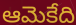
ఆమెకేది